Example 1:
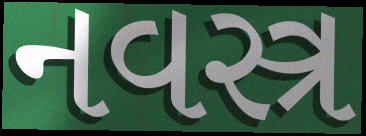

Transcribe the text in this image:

નવસ્ત્ર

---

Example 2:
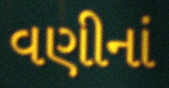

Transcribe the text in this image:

વણીનાં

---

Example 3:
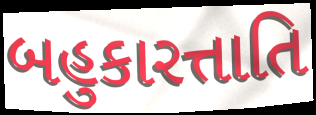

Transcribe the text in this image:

બહુકારત્તાતિ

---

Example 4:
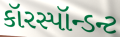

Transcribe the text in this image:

કૉરસ્પૉન્ડન્ટ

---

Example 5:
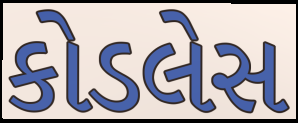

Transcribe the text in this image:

કોડલેસ